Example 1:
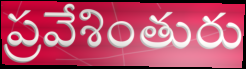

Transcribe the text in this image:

ప్రవేశింతురు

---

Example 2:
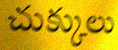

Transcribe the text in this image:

చుక్కులు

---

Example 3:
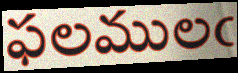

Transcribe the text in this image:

ఫలములఁ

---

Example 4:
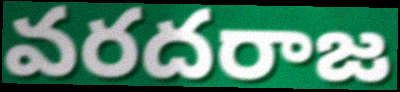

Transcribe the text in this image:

వరదరాజ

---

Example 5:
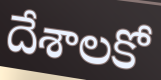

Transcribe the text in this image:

దేశాలకో